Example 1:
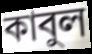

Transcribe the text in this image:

কাবুল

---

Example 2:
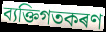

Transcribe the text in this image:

ব্যক্তিগতকৰণ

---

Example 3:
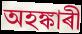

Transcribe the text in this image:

অহঙ্কাৰী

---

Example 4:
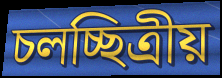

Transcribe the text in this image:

চলচ্ছিত্ৰীয়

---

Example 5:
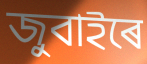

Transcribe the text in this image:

জুবাইৰে